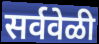
सर्ववेळी